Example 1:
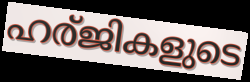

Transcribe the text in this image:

ഹര്ജികളുടെ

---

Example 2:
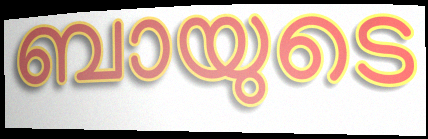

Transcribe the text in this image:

ബായുടെ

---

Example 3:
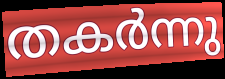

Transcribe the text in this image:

തകർന്നു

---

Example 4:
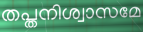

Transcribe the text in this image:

തപ്തനിശ്വാസമേ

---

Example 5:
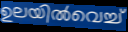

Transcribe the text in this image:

ഉലയിൽവെച്ച്